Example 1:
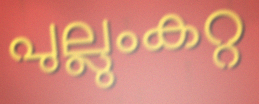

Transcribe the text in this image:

പുല്ലുംകറ്റ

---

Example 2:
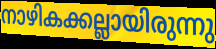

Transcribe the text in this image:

നാഴികക്കല്ലായിരുന്നു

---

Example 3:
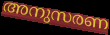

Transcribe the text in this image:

അനുസരണ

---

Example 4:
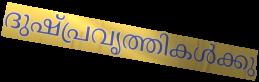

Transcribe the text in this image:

ദുഷ്പ്രവൃത്തികൾക്കു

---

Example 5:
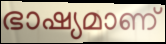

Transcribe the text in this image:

ഭാഷ്യമാണ്